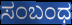
ಸಂಬಂಧ